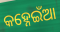
କହ୍ନେଇଁଆ